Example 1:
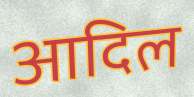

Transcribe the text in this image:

आदिल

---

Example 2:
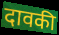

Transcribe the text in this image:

दावकी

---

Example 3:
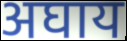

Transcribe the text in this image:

अघाय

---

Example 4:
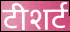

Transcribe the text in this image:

टीशर्ट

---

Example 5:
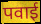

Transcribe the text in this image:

पवाई